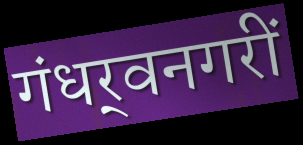
गंधर्वनगरीं